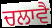
ਚਲਾਵੈ